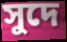
সুদে